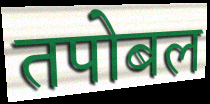
तपोबल